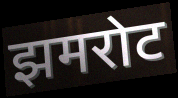
झमरोट